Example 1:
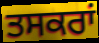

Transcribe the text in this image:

ਤਸਕਰਾਂ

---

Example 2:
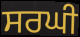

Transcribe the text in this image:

ਸਰਘੀ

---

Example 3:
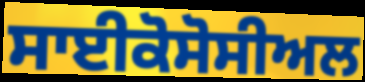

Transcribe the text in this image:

ਸਾਈਕੋਸੋਸੀਅਲ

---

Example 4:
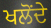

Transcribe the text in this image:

ਖਲੋਂਦੇ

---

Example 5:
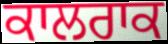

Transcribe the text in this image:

ਕਾਲਰਾਕ